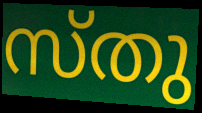
സ്തു